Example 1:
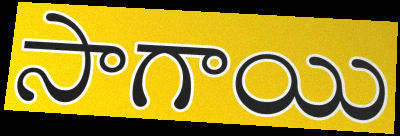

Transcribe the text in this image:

సాగాయి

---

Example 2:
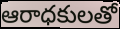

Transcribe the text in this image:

ఆరాధకులతో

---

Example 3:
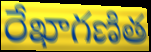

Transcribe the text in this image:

రేఖాగణిత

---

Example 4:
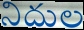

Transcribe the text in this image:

నిదుల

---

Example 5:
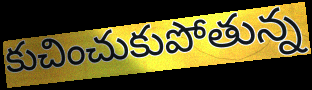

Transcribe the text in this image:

కుచించుకుపోతున్న